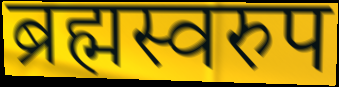
ब्रह्मस्वरुप